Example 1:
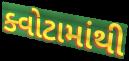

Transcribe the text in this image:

ક્વોટામાંથી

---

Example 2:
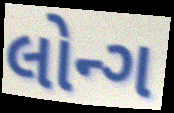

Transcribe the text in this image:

લોન્ગ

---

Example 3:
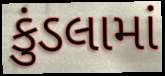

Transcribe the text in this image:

કુંડલામાં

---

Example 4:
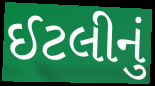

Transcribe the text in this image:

ઈટલીનું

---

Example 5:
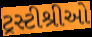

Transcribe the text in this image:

ટ્રસ્ટીશ્રીઓ